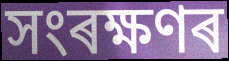
সংৰক্ষণৰ